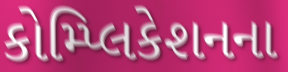
કોમ્પ્લિકેશનના